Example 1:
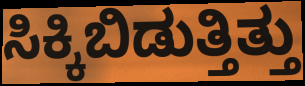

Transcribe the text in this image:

ಸಿಕ್ಕಿಬಿಡುತ್ತಿತ್ತು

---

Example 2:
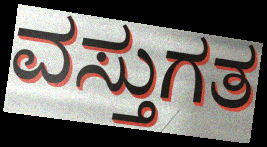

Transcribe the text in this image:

ವಸ್ತುಗತ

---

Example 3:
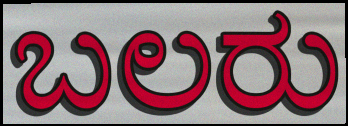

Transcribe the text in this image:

ಬಲರು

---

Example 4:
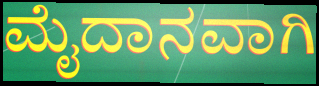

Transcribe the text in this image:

ಮೈದಾನವಾಗಿ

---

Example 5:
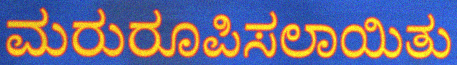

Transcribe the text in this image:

ಮರುರೂಪಿಸಲಾಯಿತು